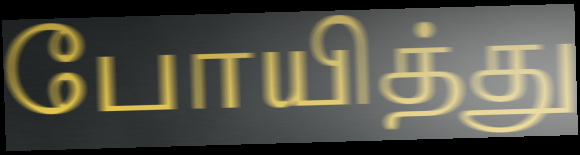
போயித்து